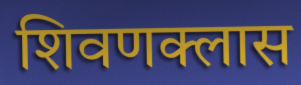
शिवणक्लास